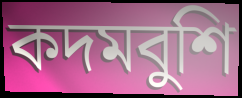
কদমবুশি